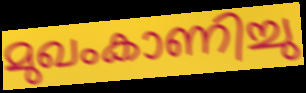
മുഖംകാണിച്ചു